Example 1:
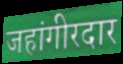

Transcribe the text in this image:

जहांगीरदार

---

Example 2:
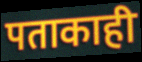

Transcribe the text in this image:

पताकाही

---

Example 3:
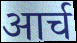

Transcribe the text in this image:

आर्च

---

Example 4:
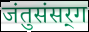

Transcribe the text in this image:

जंतुसंसर्ग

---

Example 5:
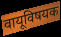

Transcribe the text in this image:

वायूविषयक